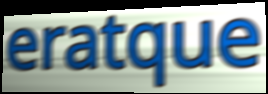
eratque